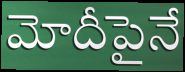
మోదీపైనే